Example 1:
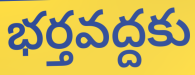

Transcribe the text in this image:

భర్తవద్దకు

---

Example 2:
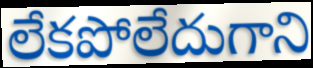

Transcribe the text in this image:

లేకపోలేదుగాని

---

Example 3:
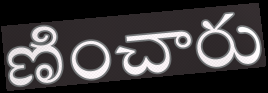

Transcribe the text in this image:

ణించారు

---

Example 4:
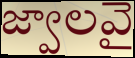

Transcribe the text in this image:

జ్వాలవై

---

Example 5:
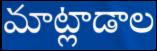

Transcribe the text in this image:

మాట్లాడాల